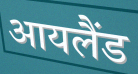
आयलैंड